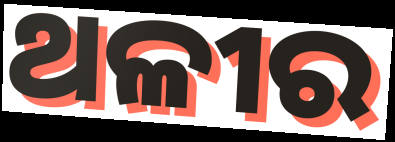
ଥଳୀର